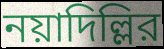
নয়াদিল্লির